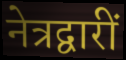
नेत्रद्वारीं